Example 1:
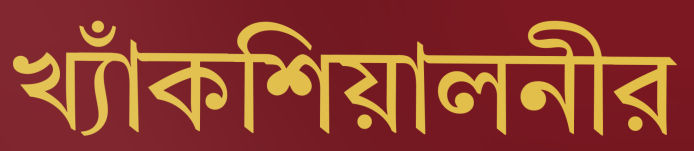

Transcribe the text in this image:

খ্যাঁকশিয়ালনীর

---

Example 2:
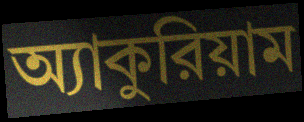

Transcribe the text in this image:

অ্যাকুরিয়াম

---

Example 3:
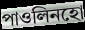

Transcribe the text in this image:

পাওলিনহো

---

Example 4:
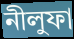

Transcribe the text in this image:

নীলুফা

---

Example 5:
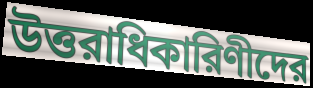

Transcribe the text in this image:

উত্তরাধিকারিণীদের